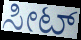
ಸೀಟ್